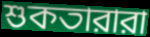
শুকতারারা